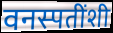
वनस्पतींशी